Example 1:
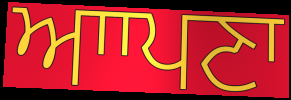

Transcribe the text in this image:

ਆਾਪਣਾ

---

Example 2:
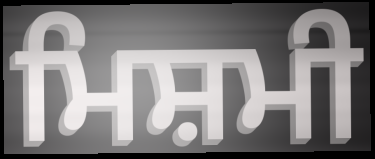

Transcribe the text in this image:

ਮਿਸ਼ਮੀ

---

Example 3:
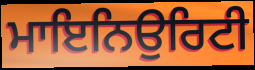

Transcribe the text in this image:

ਮਾਇਨਿਉਰਿਟੀ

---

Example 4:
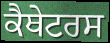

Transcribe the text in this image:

ਕੈਥੇਟਰਸ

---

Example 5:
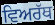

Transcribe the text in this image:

ਵਿਅਰੱਥ